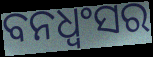
ବନଧ୍ଵଂସର